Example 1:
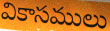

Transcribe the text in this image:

వికాసములు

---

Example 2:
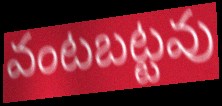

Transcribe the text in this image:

వంటబట్టవు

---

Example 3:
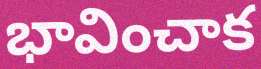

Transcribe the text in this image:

భావించాక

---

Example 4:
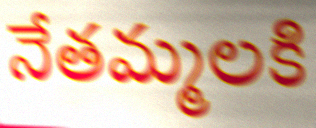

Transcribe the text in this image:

నేతమ్మలకి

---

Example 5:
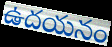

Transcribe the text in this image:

ఉదయనం